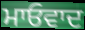
ਮਾਓਵਾਦ